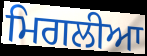
ਮਿਗਲੀਆ